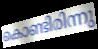
കൊണ്ടിരിന്നു